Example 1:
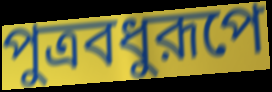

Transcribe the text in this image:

পুত্রবধুরূপে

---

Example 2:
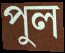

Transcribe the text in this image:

পুল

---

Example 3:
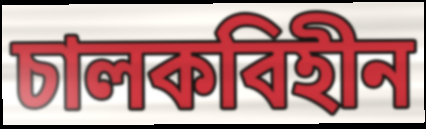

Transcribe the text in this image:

চালকবিহীন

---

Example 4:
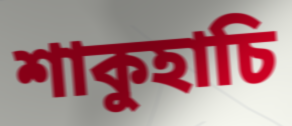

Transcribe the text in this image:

শাকুহাচি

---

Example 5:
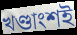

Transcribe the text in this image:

খণ্ডাংশই